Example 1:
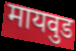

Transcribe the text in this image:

मायवुड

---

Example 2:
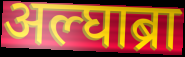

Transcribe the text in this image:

अल्घाब्रा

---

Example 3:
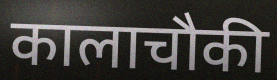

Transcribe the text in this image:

कालाचौकी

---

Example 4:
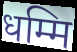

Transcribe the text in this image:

धम्मि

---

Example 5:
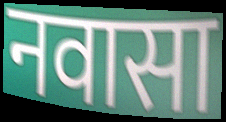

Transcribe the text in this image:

नवासा